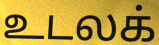
உடலக்